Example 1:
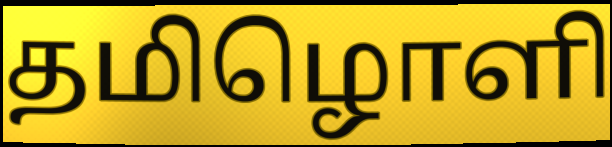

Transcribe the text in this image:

தமிழொளி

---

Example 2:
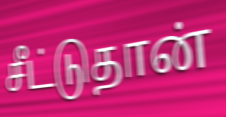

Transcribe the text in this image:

சீட்டுதான்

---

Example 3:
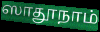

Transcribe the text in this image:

ஸாதூநாம்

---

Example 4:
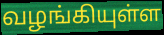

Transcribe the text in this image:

வழங்கியுள்ள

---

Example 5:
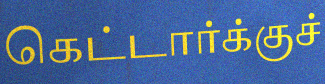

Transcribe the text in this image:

கெட்டார்க்குச்